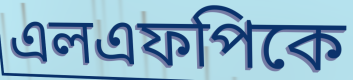
এলএফপিকে